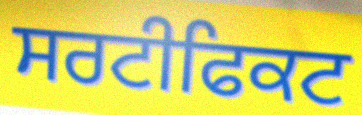
ਸਰਟੀਫਿਕਟ